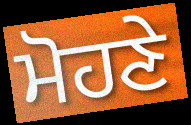
ਮੋਹਣੇ